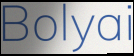
Bolyai